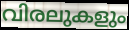
വിരലുകളും